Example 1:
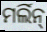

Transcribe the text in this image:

ମର୍ଲିନ୍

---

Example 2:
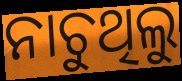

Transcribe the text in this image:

ନାଚୁଥିଲୁ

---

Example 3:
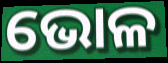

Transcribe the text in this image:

ଭୋଳ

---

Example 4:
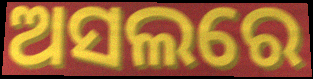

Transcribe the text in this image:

ଅସଲରେ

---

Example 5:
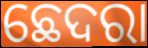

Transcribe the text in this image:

ଛେଦରା